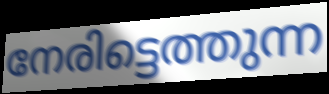
നേരിട്ടെത്തുന്ന